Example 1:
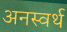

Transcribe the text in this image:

अनस्वर्थ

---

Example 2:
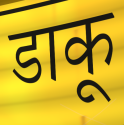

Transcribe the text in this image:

डाकू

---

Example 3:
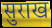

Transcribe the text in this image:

सुराख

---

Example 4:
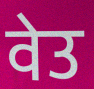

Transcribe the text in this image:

वेउ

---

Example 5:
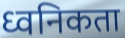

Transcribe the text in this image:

ध्वनिकता